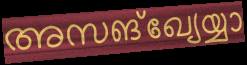
അസങ്ഖ്യേയ്യാ